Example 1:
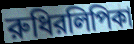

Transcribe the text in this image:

রুধিরলিপিকা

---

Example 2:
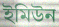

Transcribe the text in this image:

ইমিউন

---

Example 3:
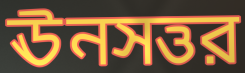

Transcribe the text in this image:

ঊনসত্তর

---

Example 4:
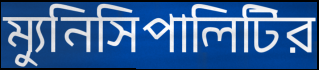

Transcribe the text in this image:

ম্যুনিসিপালিটির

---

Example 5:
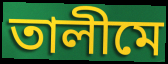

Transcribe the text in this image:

তালীমে